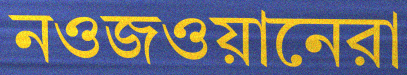
নওজওয়ানেরা